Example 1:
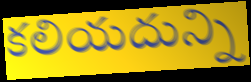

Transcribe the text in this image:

కలియదున్ని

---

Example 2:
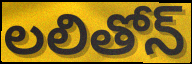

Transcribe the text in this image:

లలితోన్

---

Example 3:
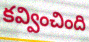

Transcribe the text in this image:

కవ్వించింది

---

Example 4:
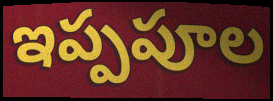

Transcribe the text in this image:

ఇప్పపూల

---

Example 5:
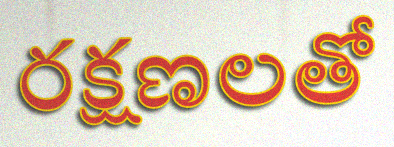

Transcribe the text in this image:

రక్షణలతో